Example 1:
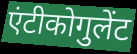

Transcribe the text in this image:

एंटीकोगुलेंट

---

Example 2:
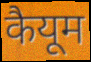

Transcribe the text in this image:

कैयूम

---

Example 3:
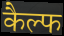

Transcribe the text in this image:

कैल्फ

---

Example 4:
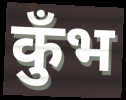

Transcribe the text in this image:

कुँभ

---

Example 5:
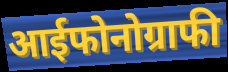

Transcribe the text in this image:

आईफोनोग्राफी